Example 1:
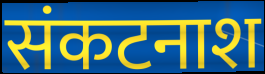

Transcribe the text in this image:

संकटनाश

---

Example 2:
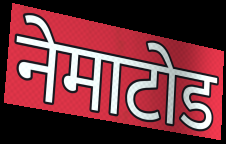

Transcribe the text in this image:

नेमाटोड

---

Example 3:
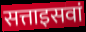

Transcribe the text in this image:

सत्ताइसवां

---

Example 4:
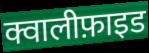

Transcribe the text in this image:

क्वालीफ़ाइड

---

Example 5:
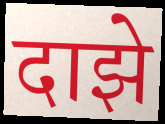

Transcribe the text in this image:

दाझे